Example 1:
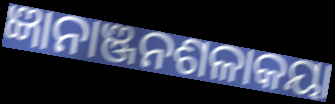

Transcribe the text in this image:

ଜ୍ଞାନାଞ୍ଜନଶଳାକୟା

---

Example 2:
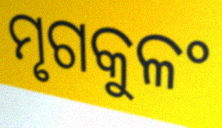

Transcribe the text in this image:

ମୃଗକୁଳଂ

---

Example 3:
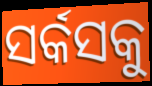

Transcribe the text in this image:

ସର୍କସକୁ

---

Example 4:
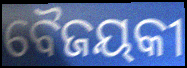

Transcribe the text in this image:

ବୈଜୟକୀ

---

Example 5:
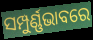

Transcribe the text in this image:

ସମ୍ପୁର୍ଣ୍ଣଭାବରେ